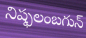
నిష్ఫలంబగున్